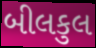
બીલકુલ